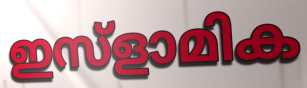
ഇസ്ളാമിക